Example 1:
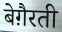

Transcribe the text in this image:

बेग़ैरती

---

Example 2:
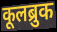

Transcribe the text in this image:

कूलब्रुक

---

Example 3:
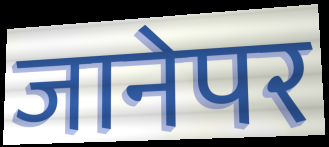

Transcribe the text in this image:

जानेपर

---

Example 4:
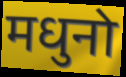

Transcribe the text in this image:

मधुनो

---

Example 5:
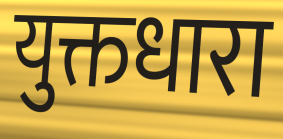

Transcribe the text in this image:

युक्तधारा